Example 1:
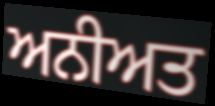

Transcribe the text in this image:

ਅਨੀਅਤ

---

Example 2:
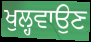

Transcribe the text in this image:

ਖੁਲ੍ਹਵਾਉਣ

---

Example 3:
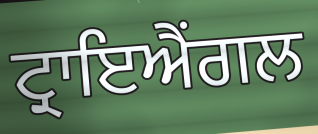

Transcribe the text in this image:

ਟ੍ਰਾਇਐਂਗਲ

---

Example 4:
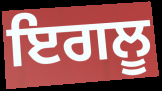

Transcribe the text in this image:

ਇਗਲੂ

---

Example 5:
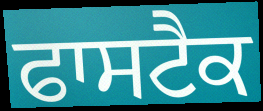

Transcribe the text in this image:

ਫਾਸਟੈਕ